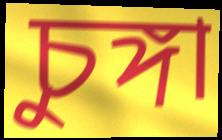
চুঙ্গা